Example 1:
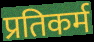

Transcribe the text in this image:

प्रतिकर्म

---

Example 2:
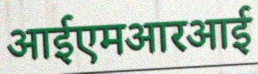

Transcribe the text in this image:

आईएमआरआई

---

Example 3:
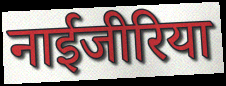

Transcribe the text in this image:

नाईजीरिया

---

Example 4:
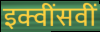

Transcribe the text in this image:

इक्वींसवीं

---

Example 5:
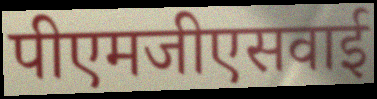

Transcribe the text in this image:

पीएमजीएसवाई